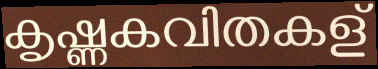
കൃഷ്ണകവിതകള്